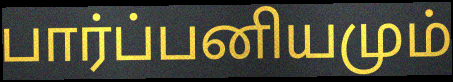
பார்ப்பனியமும்